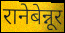
रानेबेन्नूर